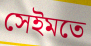
সেইমতে